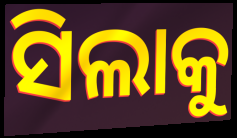
ସିଲାକୁ